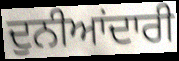
ਦੁਨੀਆਂਦਾਰੀ